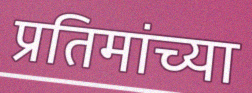
प्रतिमांच्या